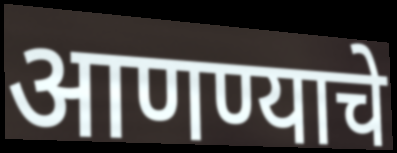
आणण्याचे